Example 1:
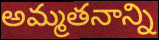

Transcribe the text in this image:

అమ్మతనాన్ని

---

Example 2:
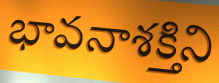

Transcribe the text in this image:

భావనాశక్తిని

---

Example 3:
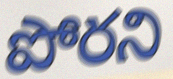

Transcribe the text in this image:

పోరని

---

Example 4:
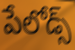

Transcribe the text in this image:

పేలోడ్స్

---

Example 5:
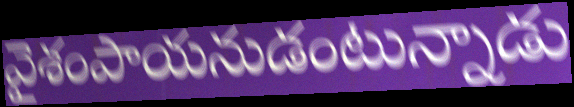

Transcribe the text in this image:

వైశంపాయనుడంటున్నాడు